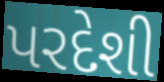
પરદેશી